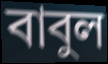
বাবুল